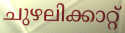
ചുഴലിക്കാറ്റ്